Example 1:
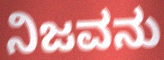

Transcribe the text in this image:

ನಿಜವನು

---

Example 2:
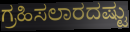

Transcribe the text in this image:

ಗ್ರಹಿಸಲಾರದಷ್ಟು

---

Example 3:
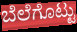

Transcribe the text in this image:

ಬೆಲೆಗೊಟ್ಟು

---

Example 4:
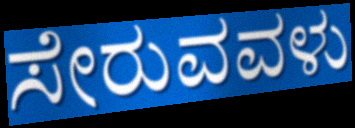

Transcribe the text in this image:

ಸೇರುವವಳು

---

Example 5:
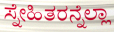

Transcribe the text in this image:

ಸ್ನೇಹಿತರನ್ನೆಲ್ಲಾ